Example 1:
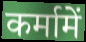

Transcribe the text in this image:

कर्मामें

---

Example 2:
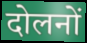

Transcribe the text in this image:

दोलनों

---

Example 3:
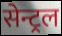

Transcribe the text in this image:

सेन्ट्रल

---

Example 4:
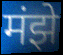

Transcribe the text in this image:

मंझे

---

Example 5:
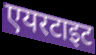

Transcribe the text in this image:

एयरटाइट